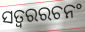
ସତ୍ୱରରଚନଂ